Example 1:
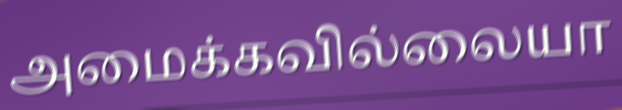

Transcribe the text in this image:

அமைக்கவில்லையா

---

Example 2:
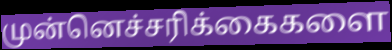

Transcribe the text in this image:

முன்னெச்சரிக்கைகளை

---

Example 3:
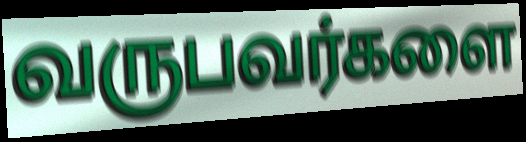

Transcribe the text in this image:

வருபவர்களை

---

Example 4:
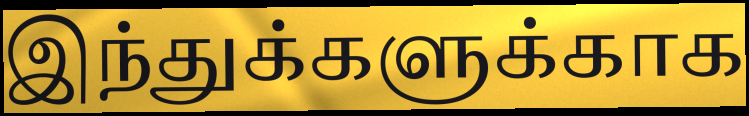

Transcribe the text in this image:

இந்துக்களுக்காக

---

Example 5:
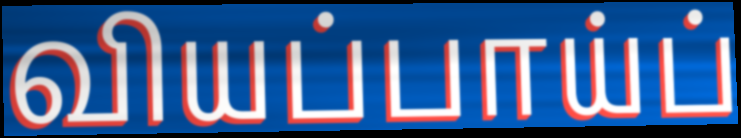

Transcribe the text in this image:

வியப்பாய்ப்